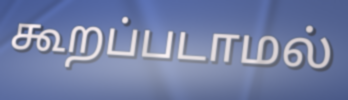
கூறப்படாமல்